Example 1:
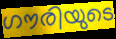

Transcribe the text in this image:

ഗൗരിയുടെ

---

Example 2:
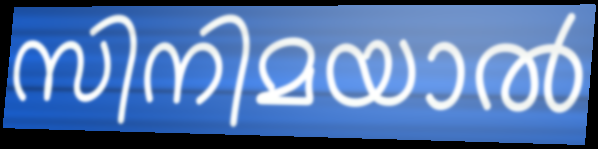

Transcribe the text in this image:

സിനിമയാൽ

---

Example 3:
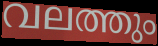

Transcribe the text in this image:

വലത്തും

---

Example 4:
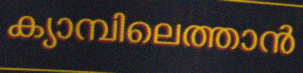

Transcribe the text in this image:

ക്യാമ്പിലെത്താൻ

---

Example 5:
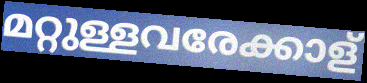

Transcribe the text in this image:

മറ്റുള്ളവരേക്കാള്